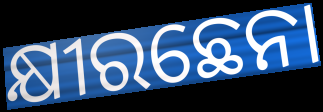
କ୍ଷୀରଛେନା